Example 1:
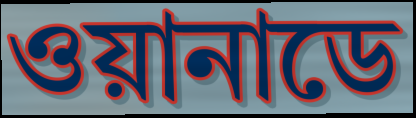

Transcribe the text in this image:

ওয়ানাডে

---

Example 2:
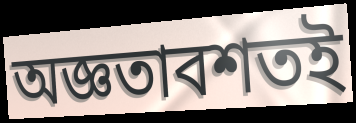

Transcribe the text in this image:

অজ্ঞতাবশতই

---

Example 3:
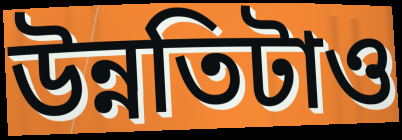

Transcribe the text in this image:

উন্নতিটাও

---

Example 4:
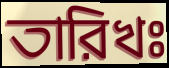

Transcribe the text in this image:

তারিখঃ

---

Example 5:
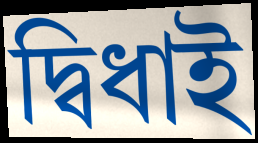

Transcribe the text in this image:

দ্বিধাই